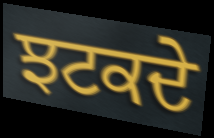
ਝਟਕਦੇ